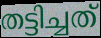
തട്ടിച്ചത്